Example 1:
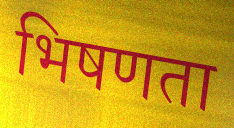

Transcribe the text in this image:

भिषणता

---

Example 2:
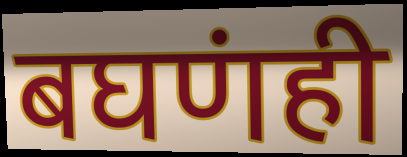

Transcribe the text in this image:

बघणंही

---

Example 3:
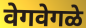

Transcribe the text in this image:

वेगवेगळे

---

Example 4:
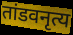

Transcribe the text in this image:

तांडवनृत्य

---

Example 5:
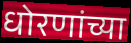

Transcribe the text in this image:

धोरणांच्या